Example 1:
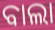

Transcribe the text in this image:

ବାଲା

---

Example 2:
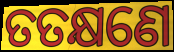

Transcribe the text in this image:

ତତକ୍ଷଣେ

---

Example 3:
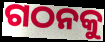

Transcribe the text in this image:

ଗଠନକୁ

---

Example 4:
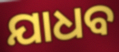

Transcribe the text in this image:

ଯାଧବ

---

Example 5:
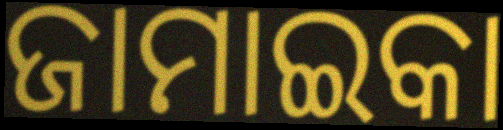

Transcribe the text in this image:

ଜାମାଇକା